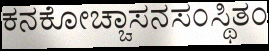
ಕನಕೋಚ್ಚಾಸನಸಂಸ್ಥಿತಂ